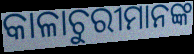
କାଳାଚୁରୀମାନଙ୍କ